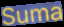
Suma